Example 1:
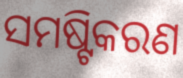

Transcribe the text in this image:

ସମଷ୍ଟିକରଣ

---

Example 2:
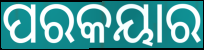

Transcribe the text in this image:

ପରକୟାର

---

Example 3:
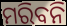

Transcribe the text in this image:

ମରିବନି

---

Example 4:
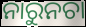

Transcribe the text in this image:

ନାରୁନଚା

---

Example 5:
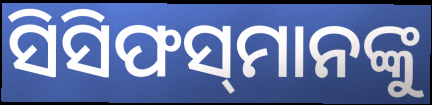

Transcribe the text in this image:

ସିସିଫସ୍‌ମାନଙ୍କୁ